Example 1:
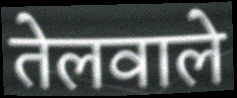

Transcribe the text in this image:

तेलवाले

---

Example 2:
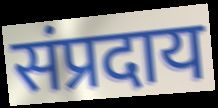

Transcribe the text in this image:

संप्रदाय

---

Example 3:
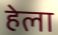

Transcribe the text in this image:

हेला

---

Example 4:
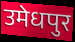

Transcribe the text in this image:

उमेधपुर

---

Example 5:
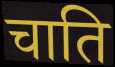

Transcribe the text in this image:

चाति